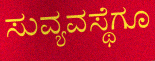
ಸುವ್ಯವಸ್ಥೆಗೂ